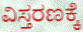
ವಿಸ್ತರಣಕ್ಕೆ